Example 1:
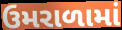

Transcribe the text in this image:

ઉમરાળામાં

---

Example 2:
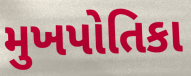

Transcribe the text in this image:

મુખપોતિકા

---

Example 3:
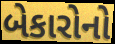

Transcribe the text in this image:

બેકારોનો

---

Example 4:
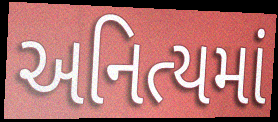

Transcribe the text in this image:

અનિત્યમાં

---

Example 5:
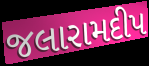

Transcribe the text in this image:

જલારામદીપ